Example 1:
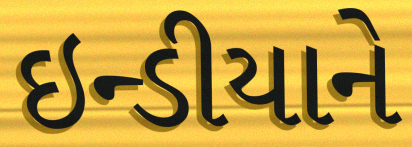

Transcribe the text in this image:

ઇન્ડીયાને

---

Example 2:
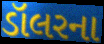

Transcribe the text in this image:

ડૉલરના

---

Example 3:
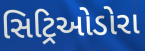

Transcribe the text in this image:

સિટ્રિઓડોરા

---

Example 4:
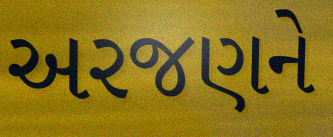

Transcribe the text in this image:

અરજણને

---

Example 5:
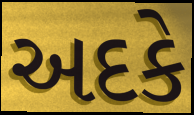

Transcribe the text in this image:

અદકે